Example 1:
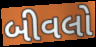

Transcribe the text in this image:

બીવલો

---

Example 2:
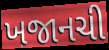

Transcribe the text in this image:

ખજાનચી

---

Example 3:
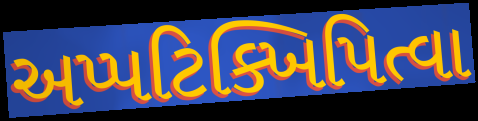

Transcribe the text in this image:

અપ્પટિક્ખિપિત્વા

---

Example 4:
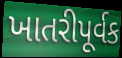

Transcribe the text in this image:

ખાતરીપૂર્વક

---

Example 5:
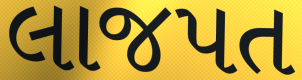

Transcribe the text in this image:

લાજપત